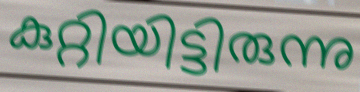
കുറ്റിയിട്ടിരുന്നു